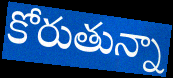
కోరుతున్నా